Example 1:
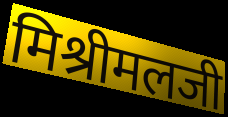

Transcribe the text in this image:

मिश्रीमलजी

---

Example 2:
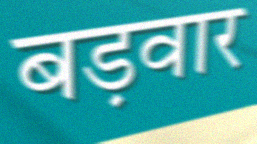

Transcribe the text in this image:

बड़वार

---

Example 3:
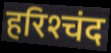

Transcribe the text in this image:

हरिश्चंद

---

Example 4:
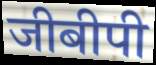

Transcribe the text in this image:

जीबीपी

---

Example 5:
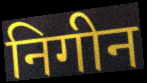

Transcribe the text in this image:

निगीन